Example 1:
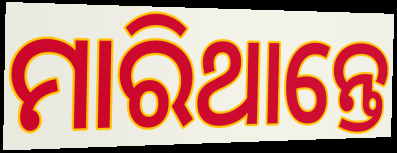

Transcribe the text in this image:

ମାରିଥାନ୍ତେ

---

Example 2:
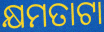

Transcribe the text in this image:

କ୍ଷମତାଟା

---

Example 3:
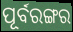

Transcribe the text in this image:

ପୂର୍ବରଙ୍ଗର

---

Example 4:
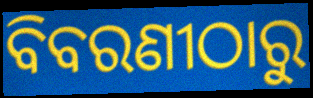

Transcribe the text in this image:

ବିବରଣୀଠାରୁ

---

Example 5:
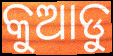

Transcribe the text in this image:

କୁଆଡୁ